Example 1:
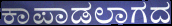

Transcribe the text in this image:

ಕಾಪಾಡಲಾಗದ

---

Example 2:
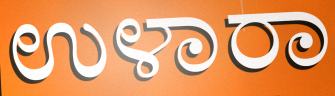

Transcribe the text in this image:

ಉಳಾರಾ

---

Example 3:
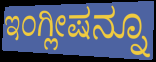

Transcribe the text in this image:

ಇಂಗ್ಲೀಷನ್ನೂ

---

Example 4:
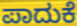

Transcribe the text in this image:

ಪಾದುಕೆ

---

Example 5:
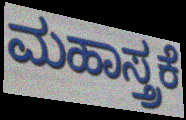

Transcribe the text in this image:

ಮಹಾಸ್ತ್ರಕೆ